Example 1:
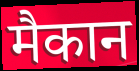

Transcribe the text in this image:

मैकान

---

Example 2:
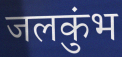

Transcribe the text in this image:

जलकुंभ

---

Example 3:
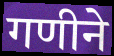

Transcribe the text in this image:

गणीने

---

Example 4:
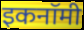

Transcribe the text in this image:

इकनॉमी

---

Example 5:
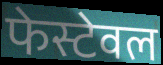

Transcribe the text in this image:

फेस्टेवल